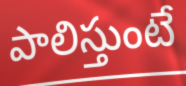
పాలిస్తుంటే